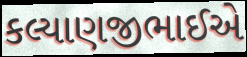
કલ્યાણજીભાઈએ